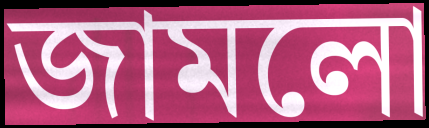
জামলো